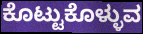
ಕೊಟ್ಟುಕೊಳ್ಳುವ